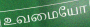
உவமையோ